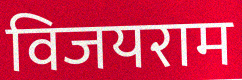
विजयराम